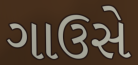
ગાઉસે